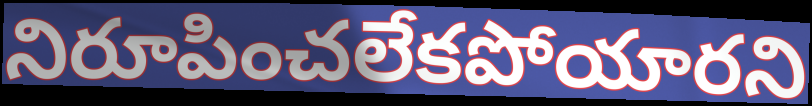
నిరూపించలేకపోయారని